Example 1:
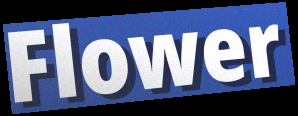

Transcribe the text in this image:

Flower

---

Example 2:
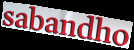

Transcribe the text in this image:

sabandho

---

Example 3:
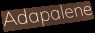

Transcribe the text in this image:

Adapalene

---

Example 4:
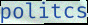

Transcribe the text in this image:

politcs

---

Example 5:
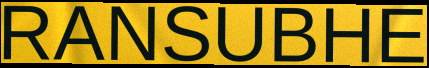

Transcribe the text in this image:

RANSUBHE